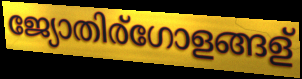
ജ്യോതിര്ഗോളങ്ങള്